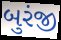
બુરંજી